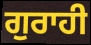
ਗੁਰਾਹੀ